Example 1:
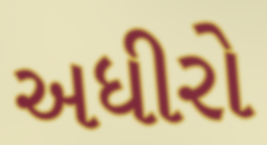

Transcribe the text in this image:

અધીરો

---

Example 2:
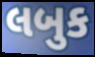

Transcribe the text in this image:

લબુક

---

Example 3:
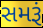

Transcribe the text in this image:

સમરૂં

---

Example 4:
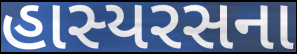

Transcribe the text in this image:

હાસ્યરસના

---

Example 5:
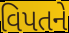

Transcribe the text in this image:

વિપતને